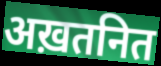
अख़तनित